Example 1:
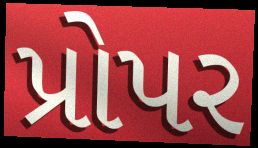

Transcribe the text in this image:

પ્રોપર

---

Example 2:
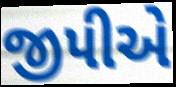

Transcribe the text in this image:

જીપીએ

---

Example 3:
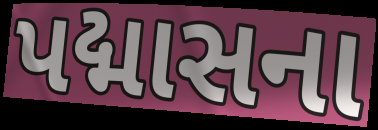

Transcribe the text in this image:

પદ્માસના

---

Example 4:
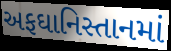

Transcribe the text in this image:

અફઘાનિસ્તાનમાં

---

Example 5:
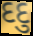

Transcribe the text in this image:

દદુ